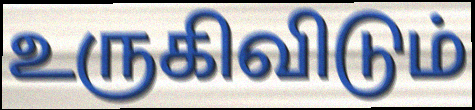
உருகிவிடும்